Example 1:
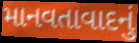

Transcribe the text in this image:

માનવતાવાદનું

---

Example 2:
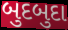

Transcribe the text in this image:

બુદબુદા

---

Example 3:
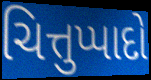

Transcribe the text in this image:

ચિત્તુપ્પાદો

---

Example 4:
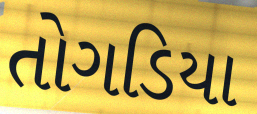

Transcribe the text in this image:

તોગડિયા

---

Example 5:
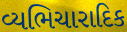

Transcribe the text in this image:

વ્યભિચારાદિક